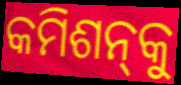
କମିଶନ୍‌କୁ